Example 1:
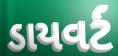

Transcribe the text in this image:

ડાયવર્ટ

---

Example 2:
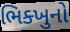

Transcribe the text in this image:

ભિક્ખુનો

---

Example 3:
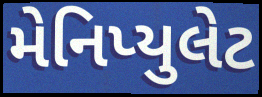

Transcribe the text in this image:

મેનિપ્યુલેટ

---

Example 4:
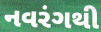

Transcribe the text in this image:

નવરંગથી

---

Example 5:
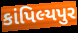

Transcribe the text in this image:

કાંપિલ્યપુર